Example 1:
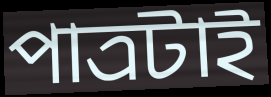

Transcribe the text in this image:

পাত্রটাই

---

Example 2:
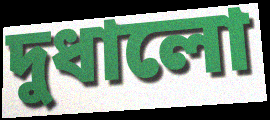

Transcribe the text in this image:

দুধালো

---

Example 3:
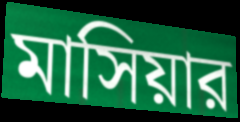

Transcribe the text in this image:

মাসিয়ার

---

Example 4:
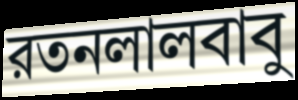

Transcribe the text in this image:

রতনলালবাবু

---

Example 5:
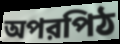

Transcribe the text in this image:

অপরপিঠ